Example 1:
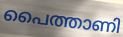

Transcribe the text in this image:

പൈത്താണി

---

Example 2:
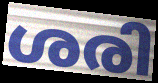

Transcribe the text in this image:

ശരി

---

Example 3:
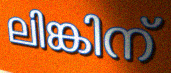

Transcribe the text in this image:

ലിങ്കിന്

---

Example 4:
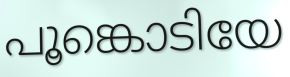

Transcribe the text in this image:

പൂങ്കൊടിയേ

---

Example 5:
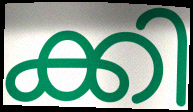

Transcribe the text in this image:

ക്കി